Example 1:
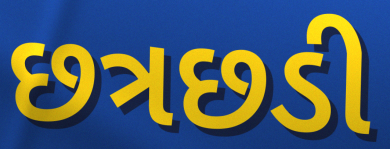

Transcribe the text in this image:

છત્રછડી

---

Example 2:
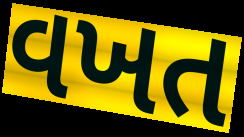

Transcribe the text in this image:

વખત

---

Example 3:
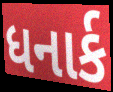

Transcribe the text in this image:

ધનાર્ક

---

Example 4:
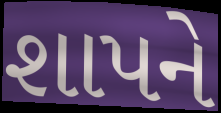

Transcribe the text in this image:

શાપને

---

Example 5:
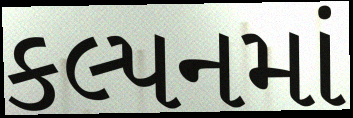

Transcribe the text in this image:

કલ્પનમાં